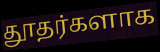
தூதர்களாக